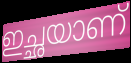
ഇച്ഛയാണ്